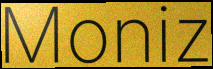
Moniz